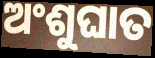
ଅଂଶୁଘାତ